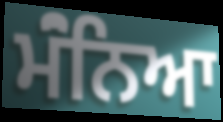
ਮੰਂਨਿਆ